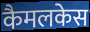
कैमलकेस